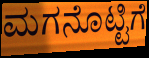
ಮಗನೊಟ್ಟಿಗೆ